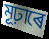
মূঢ়াৰে